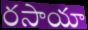
రసాయా